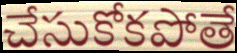
చేసుకోకపోతే